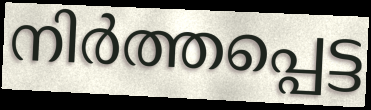
നിർത്തപ്പെട്ട